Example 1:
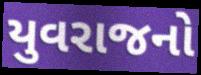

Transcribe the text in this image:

યુવરાજનો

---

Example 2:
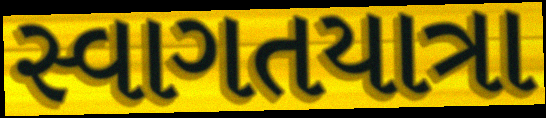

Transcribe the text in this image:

સ્વાગતયાત્રા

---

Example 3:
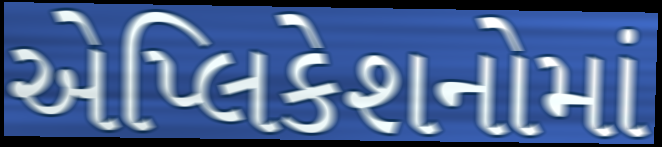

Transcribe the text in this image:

એપ્લિકેશનોમાં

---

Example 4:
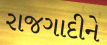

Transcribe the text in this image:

રાજગાદીને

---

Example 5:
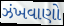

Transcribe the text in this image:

ઝંખવાણો